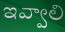
ఇవ్వాలి